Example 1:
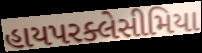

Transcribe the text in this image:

હાયપરક્લેસીમિયા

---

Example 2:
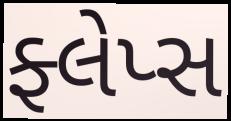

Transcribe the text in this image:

ફ્લેપ્સ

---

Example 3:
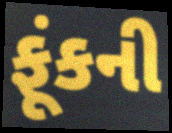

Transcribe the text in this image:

ફૂંકની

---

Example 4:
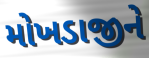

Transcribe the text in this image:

મોખડાજીને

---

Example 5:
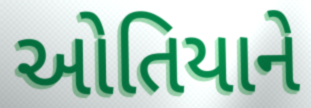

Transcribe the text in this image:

ઓતિયાને